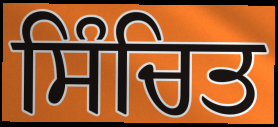
ਸਿੰਚਿਤ